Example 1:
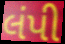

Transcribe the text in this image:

લંપી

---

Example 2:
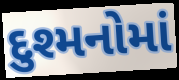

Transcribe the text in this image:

દુશ્મનોમાં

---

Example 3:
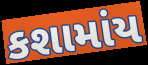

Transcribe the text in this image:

કશામાંય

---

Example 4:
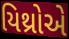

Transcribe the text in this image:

યિથ્રોએ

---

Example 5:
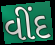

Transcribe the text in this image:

વીંદ